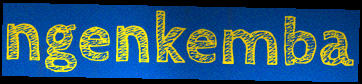
ngenkemba